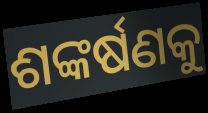
ଶଙ୍କର୍ଷଣକୁ